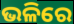
ଭଳିରେ